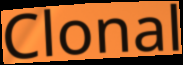
Clonal